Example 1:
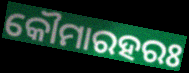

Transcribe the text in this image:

କୌମାରହରଃ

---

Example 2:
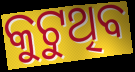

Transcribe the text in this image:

କୁଟୁଥିବ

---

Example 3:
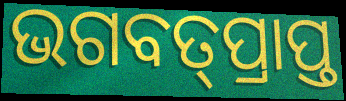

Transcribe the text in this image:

ଭଗବତ୍‌ପ୍ରାପ୍ତ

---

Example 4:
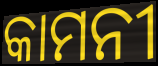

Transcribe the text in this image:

କାମନୀ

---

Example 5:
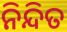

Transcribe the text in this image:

ନିନ୍ଦିତ